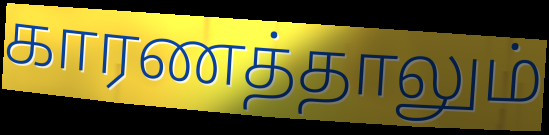
காரணத்தாலும்